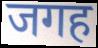
जगह